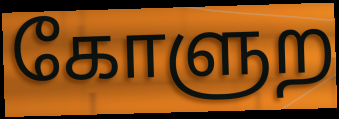
கோளுற